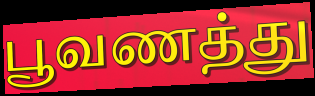
பூவணத்து